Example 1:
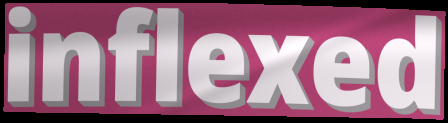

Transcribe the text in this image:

inflexed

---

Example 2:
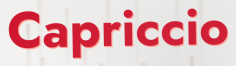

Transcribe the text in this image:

Capriccio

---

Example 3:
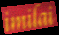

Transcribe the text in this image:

imilai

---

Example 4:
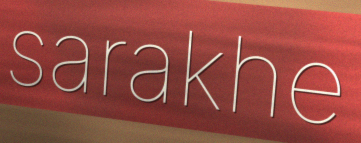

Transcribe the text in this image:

sarakhe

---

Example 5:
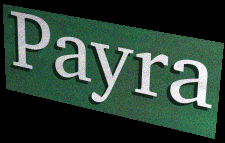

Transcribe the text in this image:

Payra